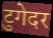
टुगेदर